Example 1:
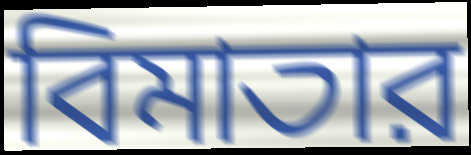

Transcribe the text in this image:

বিমাতার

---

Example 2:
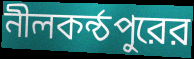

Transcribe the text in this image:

নীলকন্ঠপুরের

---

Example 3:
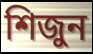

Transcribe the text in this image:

শিজুন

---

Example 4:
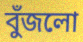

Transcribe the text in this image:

বুঁজলো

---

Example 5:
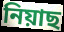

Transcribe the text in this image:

নিয়াছ